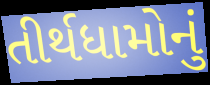
તીર્થધામોનું